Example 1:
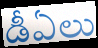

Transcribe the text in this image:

డీఏలు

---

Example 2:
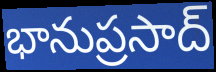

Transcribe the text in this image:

భానుప్రసాద్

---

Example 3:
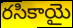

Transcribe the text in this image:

రసికాయై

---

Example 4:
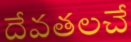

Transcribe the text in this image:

దేవతలచే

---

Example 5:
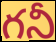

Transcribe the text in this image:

గనీ